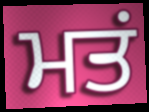
ਮਤਂ